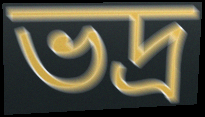
ভদ্র